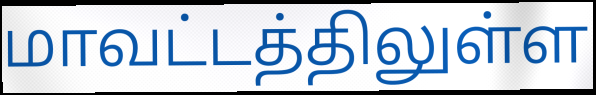
மாவட்டத்திலுள்ள